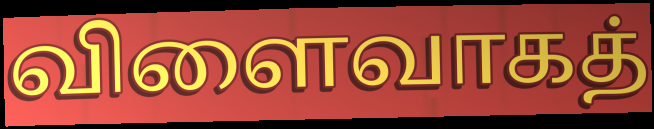
விளைவாகத்